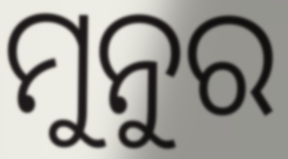
ମୁନୁର